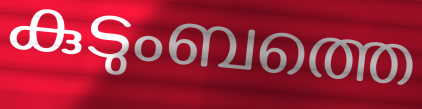
കുടുംബത്തെ